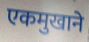
एकमुखाने